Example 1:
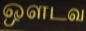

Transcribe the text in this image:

ஔடவ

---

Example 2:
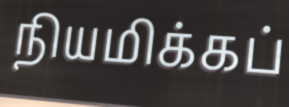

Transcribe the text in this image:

நியமிக்கப்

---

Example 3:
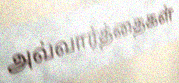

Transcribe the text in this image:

அவ்வார்த்தைகள்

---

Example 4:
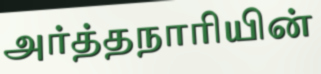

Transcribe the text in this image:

அர்த்தநாரியின்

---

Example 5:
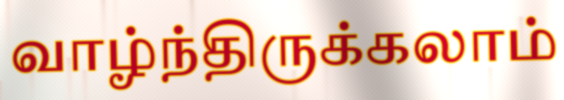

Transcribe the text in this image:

வாழ்ந்திருக்கலாம்